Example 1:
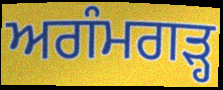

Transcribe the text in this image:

ਅਗੰਮਗੜ੍ਹ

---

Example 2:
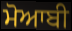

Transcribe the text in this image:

ਮੋਆਬੀ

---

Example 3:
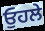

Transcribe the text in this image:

ਓੁਹਲੇ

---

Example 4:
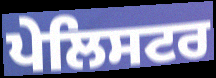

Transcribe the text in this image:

ਪੇਲਿਸਟਰ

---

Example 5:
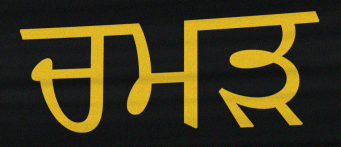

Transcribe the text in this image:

ਚਮੜ